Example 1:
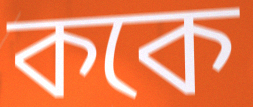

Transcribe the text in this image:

ককে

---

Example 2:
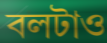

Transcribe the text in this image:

বলটাও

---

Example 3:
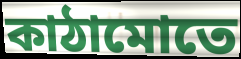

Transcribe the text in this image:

কাঠামোতে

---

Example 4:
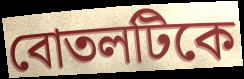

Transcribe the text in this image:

বোতলটিকে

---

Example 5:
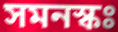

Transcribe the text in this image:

সমনস্কঃ